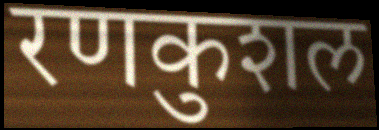
रणकुशल